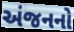
અંજનનો